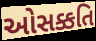
ઓસક્કતિ